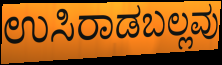
ಉಸಿರಾಡಬಲ್ಲವು